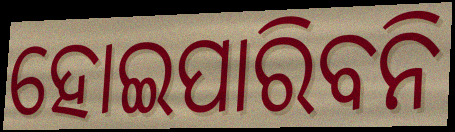
ହୋଇପାରିବନି